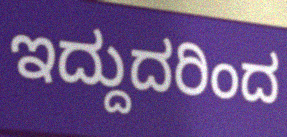
ಇದ್ದುದರಿಂದ